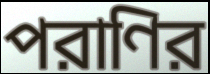
পরাণির